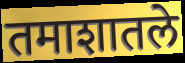
तमाशातले